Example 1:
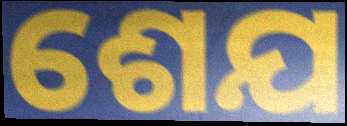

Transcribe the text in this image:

ଶେଯ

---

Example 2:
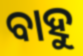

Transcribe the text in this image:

ବାହୁ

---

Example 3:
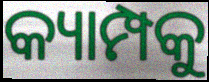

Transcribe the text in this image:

କ୍ୟାମ୍ପକୁ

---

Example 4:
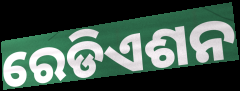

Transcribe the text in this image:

ରେଡିଏଶନ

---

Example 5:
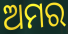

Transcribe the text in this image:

ଅମର